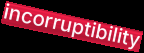
incorruptibility